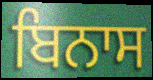
ਬਿਨਾਸ